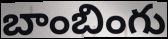
బాంబింగు